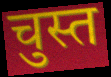
चुस्त